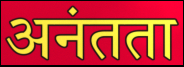
अनंतता